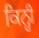
ਕਿਨ੍ਹੀ